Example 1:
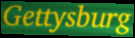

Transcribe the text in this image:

Gettysburg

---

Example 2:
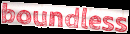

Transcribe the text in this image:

boundless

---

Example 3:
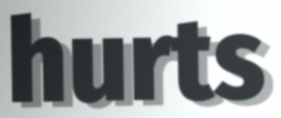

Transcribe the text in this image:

hurts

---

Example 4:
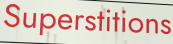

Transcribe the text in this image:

Superstitions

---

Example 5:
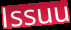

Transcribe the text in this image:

Issuu